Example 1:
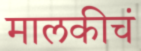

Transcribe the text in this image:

मालकीचं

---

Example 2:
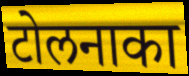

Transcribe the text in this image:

टोलनाका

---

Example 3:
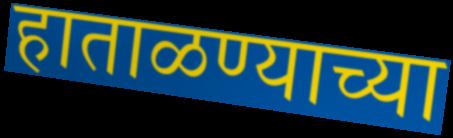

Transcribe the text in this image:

हाताळण्याच्या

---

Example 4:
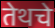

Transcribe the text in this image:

तेथचे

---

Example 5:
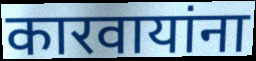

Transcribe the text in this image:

कारवायांना